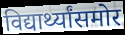
विद्यार्थ्यांसमोर